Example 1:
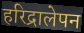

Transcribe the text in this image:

हरिद्रालेपन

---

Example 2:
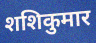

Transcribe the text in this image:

शशिकुमार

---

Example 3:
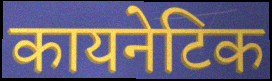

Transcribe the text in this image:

कायनेटिक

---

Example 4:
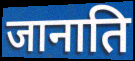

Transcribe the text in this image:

जानाति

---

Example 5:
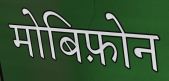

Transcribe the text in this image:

मोबिफ़ोन